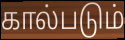
கால்படும்